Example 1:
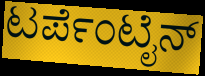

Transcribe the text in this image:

ಟರ್ಪೆಂಟೈನ್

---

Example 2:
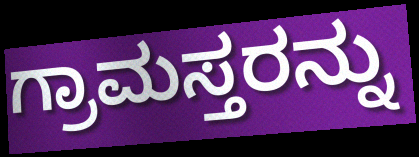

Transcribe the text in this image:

ಗ್ರಾಮಸ್ತರನ್ನು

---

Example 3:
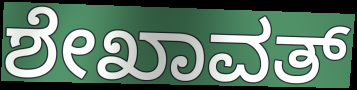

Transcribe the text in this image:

ಶೇಖಾವತ್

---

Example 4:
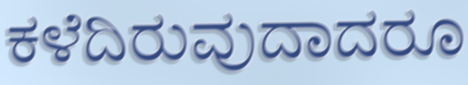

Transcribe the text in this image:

ಕಳೆದಿರುವುದಾದರೂ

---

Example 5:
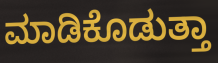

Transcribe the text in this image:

ಮಾಡಿಕೊಡುತ್ತಾ